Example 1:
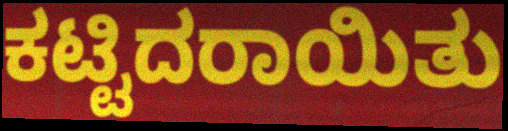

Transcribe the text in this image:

ಕಟ್ಟಿದರಾಯಿತು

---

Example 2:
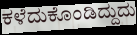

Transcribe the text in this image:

ಕಳೆದುಕೊಂಡಿದ್ದುದು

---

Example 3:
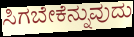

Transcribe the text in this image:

ಸಿಗಬೇಕೆನ್ನುವುದು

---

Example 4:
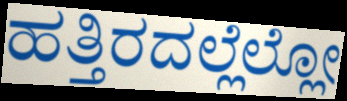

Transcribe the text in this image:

ಹತ್ತಿರದಲ್ಲೆಲ್ಲೋ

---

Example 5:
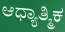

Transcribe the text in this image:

ಆಧ್ಯಾತ್ಮಿಕ